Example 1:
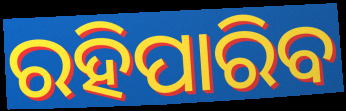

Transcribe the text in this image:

ରହିପାରିବ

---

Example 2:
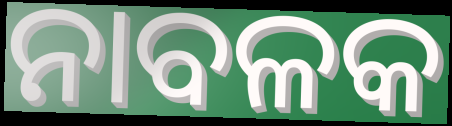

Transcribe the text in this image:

ନାବଳକ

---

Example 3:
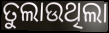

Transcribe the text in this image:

ତୁଲାଉଥିଲା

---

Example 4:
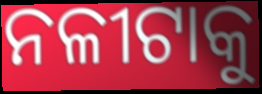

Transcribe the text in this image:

ନଳୀଟାକୁ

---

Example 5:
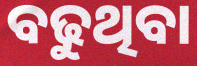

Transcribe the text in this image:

ବଢୁଥିବା